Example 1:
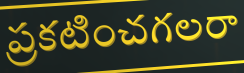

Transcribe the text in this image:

ప్రకటించగలరా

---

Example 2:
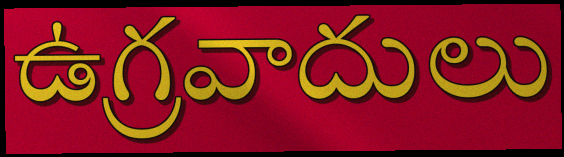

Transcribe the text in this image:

ఉగ్రవాదులు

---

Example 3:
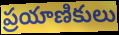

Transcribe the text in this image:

ప్రయాణికులు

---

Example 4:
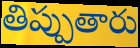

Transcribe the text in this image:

తిప్పుతారు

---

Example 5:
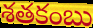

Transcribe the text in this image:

శతకంబు